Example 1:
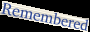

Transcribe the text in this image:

Remembered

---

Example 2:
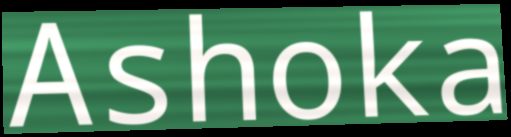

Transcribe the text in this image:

Ashoka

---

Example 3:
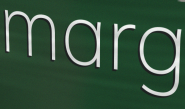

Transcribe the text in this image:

marg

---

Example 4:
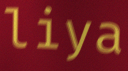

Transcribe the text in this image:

liya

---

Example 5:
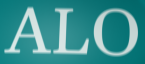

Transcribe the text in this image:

ALO